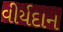
વીર્યદાન